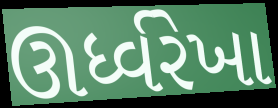
ઊર્ધ્વરેખા